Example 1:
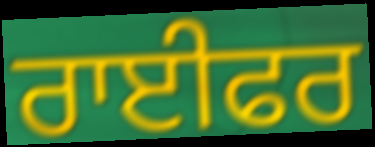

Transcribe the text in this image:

ਰਾਈਫਰ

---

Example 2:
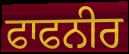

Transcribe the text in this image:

ਫਾਫਨੀਰ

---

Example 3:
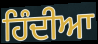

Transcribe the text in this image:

ਹਿੰਦੀਆ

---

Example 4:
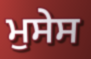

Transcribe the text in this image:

ਮੁਸੇਸ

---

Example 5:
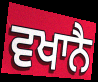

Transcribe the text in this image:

ਵਖਾਨੈ